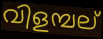
വിളമ്പല്